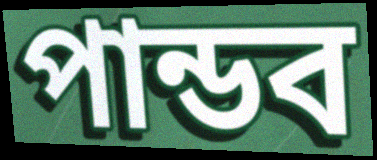
পান্ডব